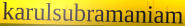
karulsubramaniam